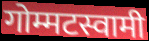
गोम्मटस्वामी